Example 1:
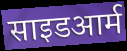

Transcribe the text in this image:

साइडआर्म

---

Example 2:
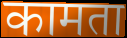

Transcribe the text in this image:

कामता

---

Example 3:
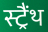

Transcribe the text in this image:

स्ट्रैंथ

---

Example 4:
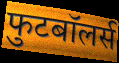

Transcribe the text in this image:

फुटबॉलर्स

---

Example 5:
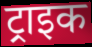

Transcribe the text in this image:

ट्राइक